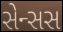
સેન્સસ